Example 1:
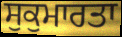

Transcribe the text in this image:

ਸੁਕੁਮਾਰਤਾ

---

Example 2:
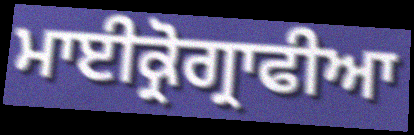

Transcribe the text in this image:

ਮਾਈਕ੍ਰੋਗ੍ਰਾਫੀਆ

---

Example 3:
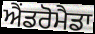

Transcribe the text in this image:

ਐਂਡਰੋਮੈਡਾ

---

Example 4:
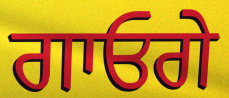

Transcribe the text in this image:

ਗਾਓਗੇ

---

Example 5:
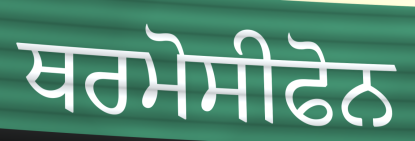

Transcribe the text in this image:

ਥਰਮੋਸੀਫੋਨ